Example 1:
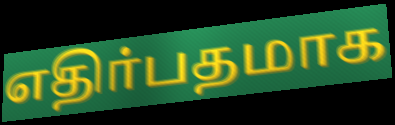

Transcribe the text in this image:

எதிர்பதமாக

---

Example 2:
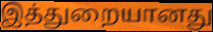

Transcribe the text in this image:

இத்துறையானது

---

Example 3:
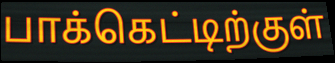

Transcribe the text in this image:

பாக்கெட்டிற்குள்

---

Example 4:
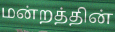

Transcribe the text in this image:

மன்றத்தின்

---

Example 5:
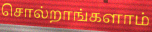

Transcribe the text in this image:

சொல்றாங்களாம்